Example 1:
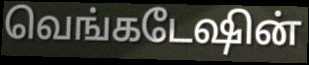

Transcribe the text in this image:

வெங்கடேஷின்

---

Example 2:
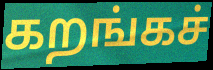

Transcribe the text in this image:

கறங்கச்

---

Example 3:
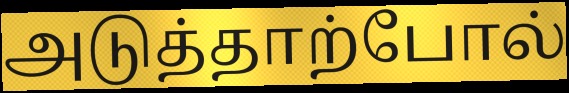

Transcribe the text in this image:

அடுத்தாற்போல்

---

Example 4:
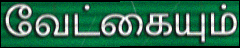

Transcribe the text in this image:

வேட்கையும்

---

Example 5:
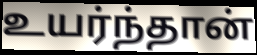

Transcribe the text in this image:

உயர்ந்தான்